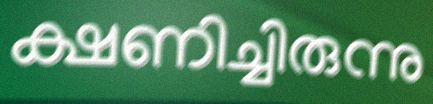
ക്ഷണിച്ചിരുന്നു